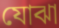
যোঝা